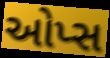
ઓપ્સ